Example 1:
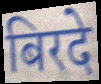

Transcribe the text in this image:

बिरदे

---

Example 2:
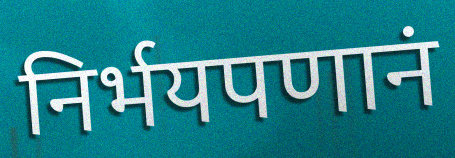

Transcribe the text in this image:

निर्भयपणानं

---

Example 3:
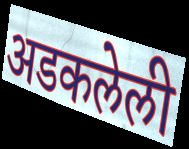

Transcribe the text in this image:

अडकलेली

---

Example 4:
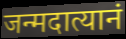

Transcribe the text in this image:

जन्मदात्यानं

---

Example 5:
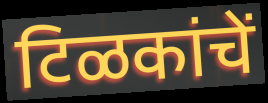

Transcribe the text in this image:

टिळकांचें